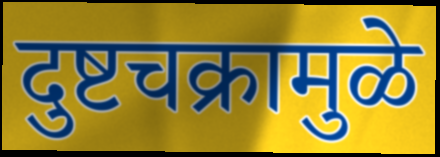
दुष्टचक्रामुळे